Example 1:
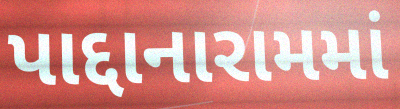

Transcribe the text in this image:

પાદ્દાનારામમાં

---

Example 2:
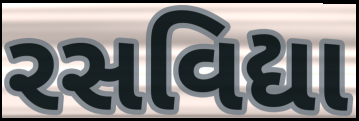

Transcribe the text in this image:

રસવિદ્યા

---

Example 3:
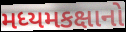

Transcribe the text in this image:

મધ્યમકક્ષાનો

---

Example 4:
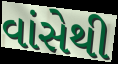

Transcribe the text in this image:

વાંસેથી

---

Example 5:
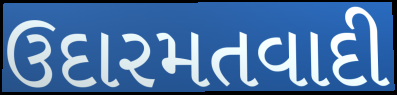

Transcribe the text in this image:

ઉદારમતવાદી